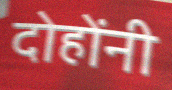
दोहोंनी